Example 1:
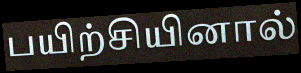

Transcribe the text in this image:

பயிற்சியினால்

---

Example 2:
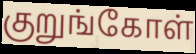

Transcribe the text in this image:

குறுங்கோள்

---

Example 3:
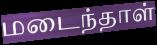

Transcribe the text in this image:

மடைந்தாள்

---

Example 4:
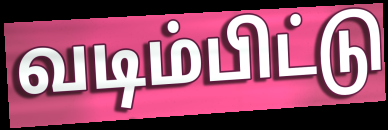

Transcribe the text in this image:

வடிம்பிட்டு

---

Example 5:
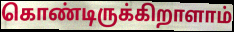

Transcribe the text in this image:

கொண்டிருக்கிறாளாம்